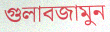
গুলাবজামুন